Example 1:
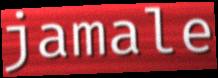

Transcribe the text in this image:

jamale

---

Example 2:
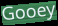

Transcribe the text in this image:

Gooey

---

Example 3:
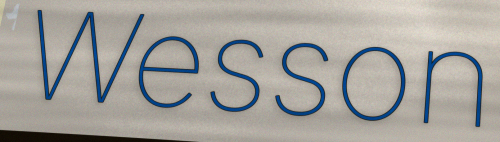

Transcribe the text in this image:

Wesson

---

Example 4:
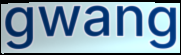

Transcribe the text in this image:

gwang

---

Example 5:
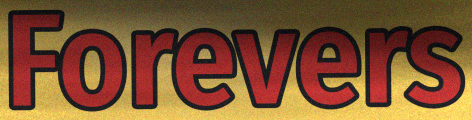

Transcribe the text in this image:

Forevers